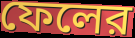
ফেলের